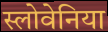
स्लोवेनिया